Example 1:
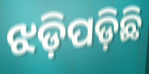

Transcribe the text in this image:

ଝଡ଼ିପଡ଼ିଛି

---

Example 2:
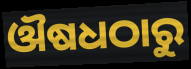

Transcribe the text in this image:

ଔଷଧଠାରୁ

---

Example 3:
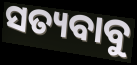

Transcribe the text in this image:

ସତ୍ୟବାବୁ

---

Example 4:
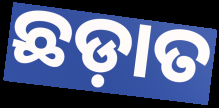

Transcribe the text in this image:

ଛଡ଼ାତ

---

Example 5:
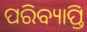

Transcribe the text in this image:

ପରିବ୍ୟାପ୍ତି